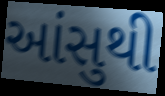
આંસુથી